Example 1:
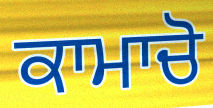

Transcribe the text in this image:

ਕਾਮਾਚੋ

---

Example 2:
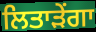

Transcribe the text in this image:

ਲਿਤਾੜੇਂਗਾ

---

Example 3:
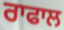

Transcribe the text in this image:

ਰਾਫਾਲ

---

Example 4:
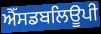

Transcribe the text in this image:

ਐੱਸਡਬਲਿਊਪੀ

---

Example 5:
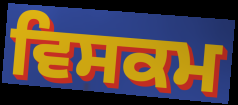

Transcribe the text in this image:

ਵਿਸਕਮ